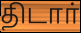
திடார்